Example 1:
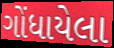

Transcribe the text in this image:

ગોંધાયેલા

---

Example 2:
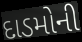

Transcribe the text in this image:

દાડમોની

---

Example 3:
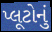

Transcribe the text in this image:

પ્લૂટોનું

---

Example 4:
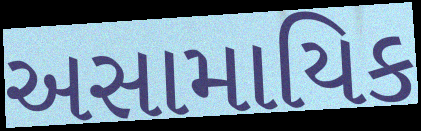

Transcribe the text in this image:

અસામાયિક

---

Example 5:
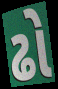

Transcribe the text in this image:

ઢો